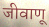
जीवाणू